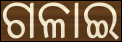
ଗଳାଇ